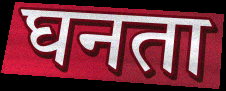
घनता